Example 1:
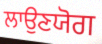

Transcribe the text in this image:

ਲਾਉਣਯੋਗ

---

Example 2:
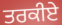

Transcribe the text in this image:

ਤਰਕੀਏ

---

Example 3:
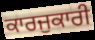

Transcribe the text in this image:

ਕਾਰਜੁਕਾਰੀ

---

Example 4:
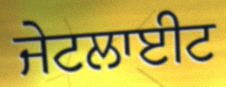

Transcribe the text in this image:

ਜੇਟਲਾਈਟ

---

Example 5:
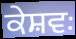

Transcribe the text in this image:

ਕੇਸ਼ਵਃ